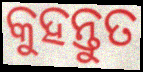
କୁହନ୍ତୁତ